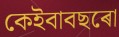
কেইবাবছৰো